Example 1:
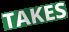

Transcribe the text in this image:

TAKES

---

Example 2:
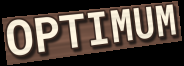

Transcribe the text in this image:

OPTIMUM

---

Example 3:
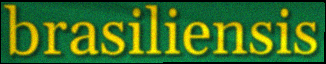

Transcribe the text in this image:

brasiliensis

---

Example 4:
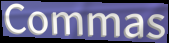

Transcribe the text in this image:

Commas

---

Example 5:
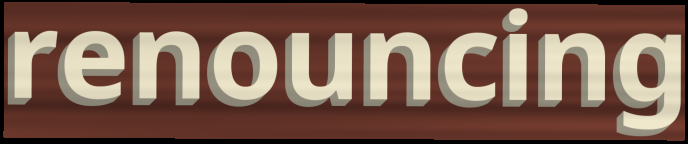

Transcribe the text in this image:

renouncing